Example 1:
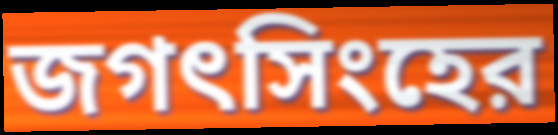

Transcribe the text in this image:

জগৎসিংহের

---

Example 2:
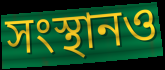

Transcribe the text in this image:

সংস্থানও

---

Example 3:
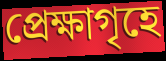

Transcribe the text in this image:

প্রেক্ষাগৃহে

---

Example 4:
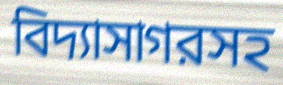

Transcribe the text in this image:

বিদ্যাসাগরসহ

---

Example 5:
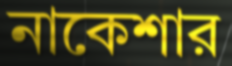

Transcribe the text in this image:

নাকেশার